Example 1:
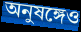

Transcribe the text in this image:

অনুষঙ্গেও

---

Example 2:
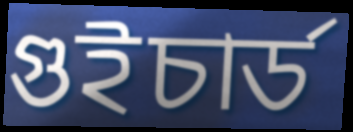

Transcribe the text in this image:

গুইচার্ড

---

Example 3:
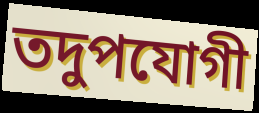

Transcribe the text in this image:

তদুপযোগী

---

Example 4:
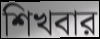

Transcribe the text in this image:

শিখবার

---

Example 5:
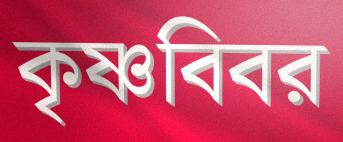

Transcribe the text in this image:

কৃষ্ণবিবর